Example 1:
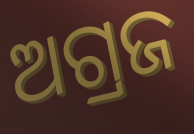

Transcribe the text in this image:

ଅଗ୍ରଜ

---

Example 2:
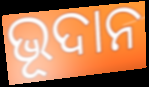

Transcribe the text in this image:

ଭୂଦାନ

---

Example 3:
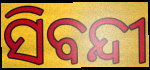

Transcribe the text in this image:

ସିବନ୍ଦୀ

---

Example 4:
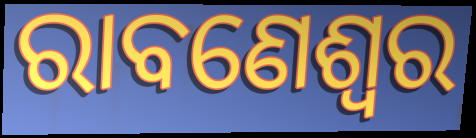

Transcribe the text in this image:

ରାବଣେଶ୍ୱର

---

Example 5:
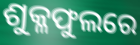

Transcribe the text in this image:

ଶୁକ୍ଳଫୁଲରେ